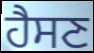
ਹੈਸਣ